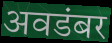
अवडंबर